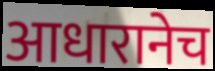
आधारानेच